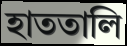
হাততালি